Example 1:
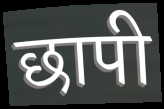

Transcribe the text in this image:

छापी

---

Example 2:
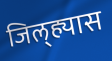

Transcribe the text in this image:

जिल्ह्यास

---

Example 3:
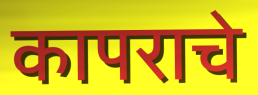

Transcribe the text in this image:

कापराचे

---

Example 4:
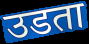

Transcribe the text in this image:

उडता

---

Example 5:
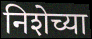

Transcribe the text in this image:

निशेच्या